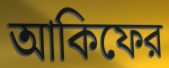
আকিফের